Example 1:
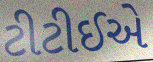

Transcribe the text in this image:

ટીટીઈએ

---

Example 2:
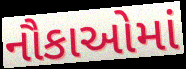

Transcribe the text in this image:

નૌકાઓમાં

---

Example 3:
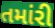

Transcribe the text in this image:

તમાંરી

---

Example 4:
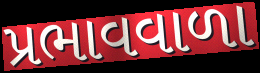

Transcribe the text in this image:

પ્રભાવવાળા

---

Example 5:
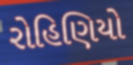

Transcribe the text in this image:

રોહિણિયો